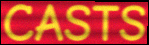
CASTS